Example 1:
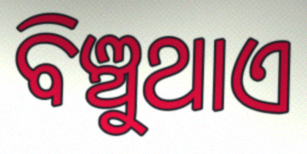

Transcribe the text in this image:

ବିଞ୍ଚୁଥାଏ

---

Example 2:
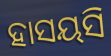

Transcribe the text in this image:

ହାସୟସି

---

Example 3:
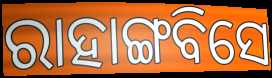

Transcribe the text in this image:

ରାହାଙ୍ଗବିସେ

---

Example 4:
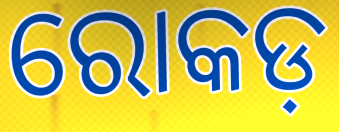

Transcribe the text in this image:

ରୋକଡ଼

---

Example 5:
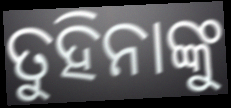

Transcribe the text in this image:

ତୁହିନାଙ୍କୁ